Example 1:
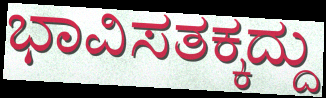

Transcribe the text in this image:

ಭಾವಿಸತಕ್ಕದ್ದು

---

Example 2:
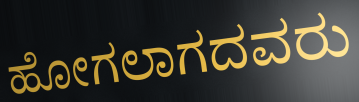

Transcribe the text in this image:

ಹೋಗಲಾಗದವರು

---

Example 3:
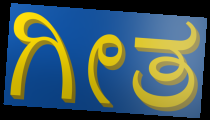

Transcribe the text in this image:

ಗೀತ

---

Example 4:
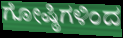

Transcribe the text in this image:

ಗೋಷ್ಠಿಗಳಿಂದ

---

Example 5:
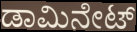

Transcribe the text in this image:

ಡಾಮಿನೇಟ್